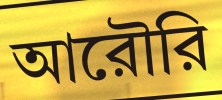
আরৌরি